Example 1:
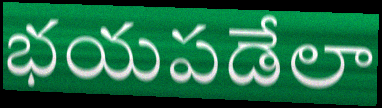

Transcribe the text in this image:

భయపడేలా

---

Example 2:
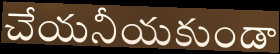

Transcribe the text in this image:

చేయనీయకుండా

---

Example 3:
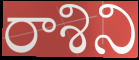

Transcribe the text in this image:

రాశిని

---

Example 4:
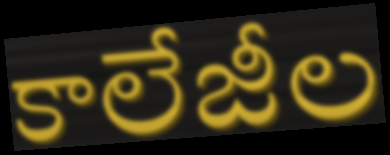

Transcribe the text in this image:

కాలేజీల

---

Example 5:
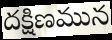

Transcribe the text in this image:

దక్షిణమున